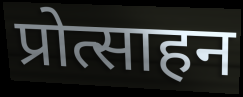
प्रोत्साहन